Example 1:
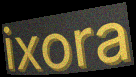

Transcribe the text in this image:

ixora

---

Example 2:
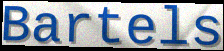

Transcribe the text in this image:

Bartels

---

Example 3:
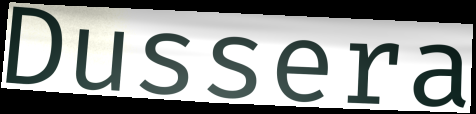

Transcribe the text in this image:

Dussera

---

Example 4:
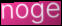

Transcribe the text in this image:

noge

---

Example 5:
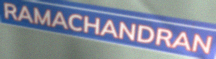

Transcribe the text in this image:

RAMACHANDRAN